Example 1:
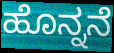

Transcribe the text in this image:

ಹೊನ್ನನೆ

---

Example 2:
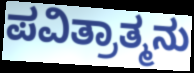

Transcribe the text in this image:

ಪವಿತ್ರಾತ್ಮನು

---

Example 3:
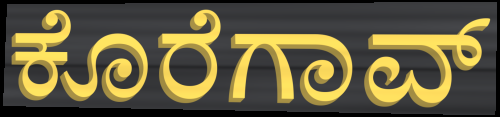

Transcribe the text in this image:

ಕೊರೆಗಾವ್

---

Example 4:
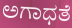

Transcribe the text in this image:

ಅಗಾಧತೆ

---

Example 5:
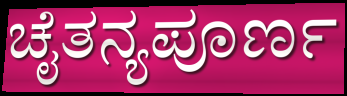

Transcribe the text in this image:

ಚೈತನ್ಯಪೂರ್ಣ